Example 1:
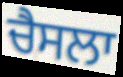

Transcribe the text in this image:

ਚੈਸਲਾ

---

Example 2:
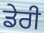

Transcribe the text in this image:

ਡੇਰੀ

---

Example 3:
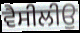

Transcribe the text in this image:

ਵੈਸੀਲੀਉ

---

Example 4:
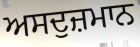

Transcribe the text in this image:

ਅਸਦੁਜ਼ਮਾਨ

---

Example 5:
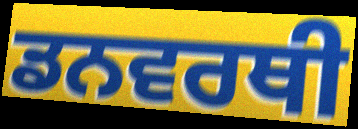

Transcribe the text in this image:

ਡਨਵਰਥੀ